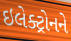
ઇલેક્ટ્રોનને